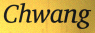
Chwang